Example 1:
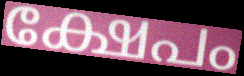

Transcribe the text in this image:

ക്ഷേപം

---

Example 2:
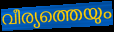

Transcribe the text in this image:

വീര്യത്തെയും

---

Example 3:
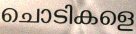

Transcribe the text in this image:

ചൊടികളെ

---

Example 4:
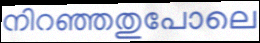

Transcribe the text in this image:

നിറഞ്ഞതുപോലെ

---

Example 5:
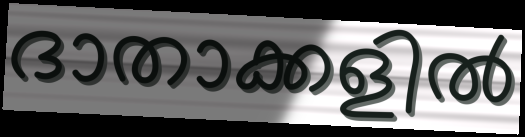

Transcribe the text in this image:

ദാതാക്കളിൽ